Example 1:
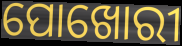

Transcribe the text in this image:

ପୋଖୋରୀ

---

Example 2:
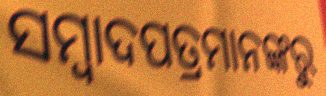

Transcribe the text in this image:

ସମ୍ୱାଦପତ୍ରମାନଙ୍କରୁ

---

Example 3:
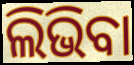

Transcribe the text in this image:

ଲିଭିବା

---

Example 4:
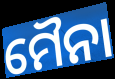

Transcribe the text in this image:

ମୈନା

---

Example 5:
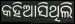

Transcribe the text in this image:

କହିଆସିଥିଲି